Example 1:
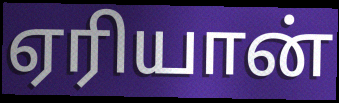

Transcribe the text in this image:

ஏரியான்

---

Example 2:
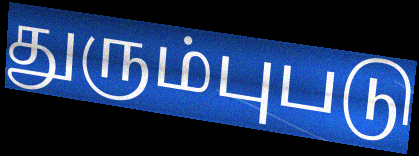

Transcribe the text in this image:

துரும்புபடு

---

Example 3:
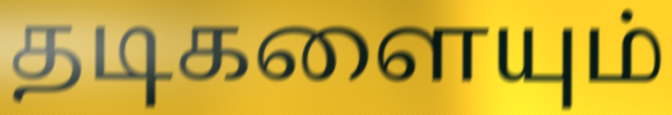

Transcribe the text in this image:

தடிகளையும்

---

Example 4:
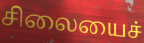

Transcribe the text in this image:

சிலையைச்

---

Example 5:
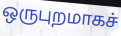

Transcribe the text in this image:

ஒருபுறமாகச்